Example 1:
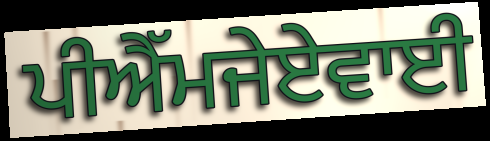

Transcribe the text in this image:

ਪੀਐੱਮਜੇਏਵਾਈ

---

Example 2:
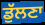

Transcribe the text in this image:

ਡੁੱਲਣਾ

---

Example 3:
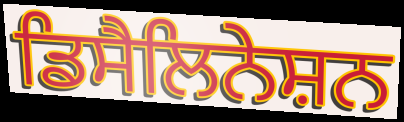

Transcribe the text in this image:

ਡਿਸੈਲਿਨੇਸ਼ਨ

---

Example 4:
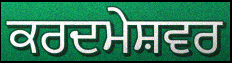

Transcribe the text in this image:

ਕਰਦਮੇਸ਼ਵਰ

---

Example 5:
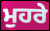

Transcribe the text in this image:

ਮੁਹਰੇ